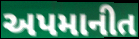
અપમાનીત